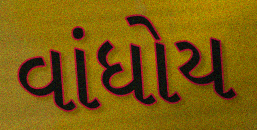
વાંધોય